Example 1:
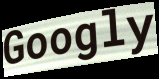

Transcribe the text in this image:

Googly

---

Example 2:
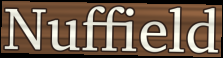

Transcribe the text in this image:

Nuffield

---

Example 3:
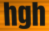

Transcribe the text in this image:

hgh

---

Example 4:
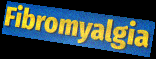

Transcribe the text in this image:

Fibromyalgia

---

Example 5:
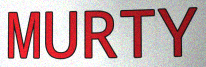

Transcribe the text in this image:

MURTY